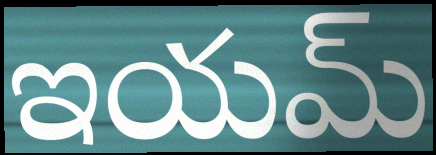
ఇయమ్